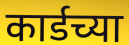
कार्डच्या